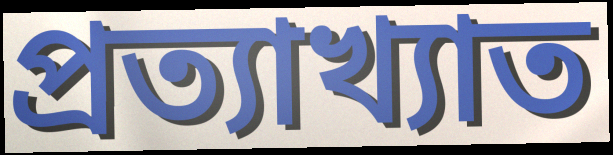
প্রত্যাখ্যাত